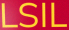
LSIL